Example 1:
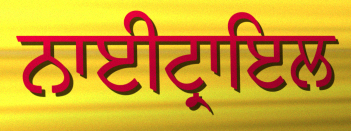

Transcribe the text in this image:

ਨਾਈਟ੍ਰਾਇਲ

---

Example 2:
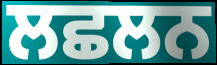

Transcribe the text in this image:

ਲਛਲਨ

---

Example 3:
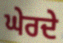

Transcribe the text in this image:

ਘੇਰਦੇ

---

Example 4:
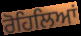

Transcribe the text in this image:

ਰੋਹਿਲਿਆਂ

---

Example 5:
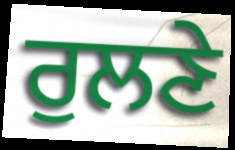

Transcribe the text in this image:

ਰੁਲਣੇ